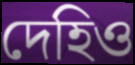
দেহিও